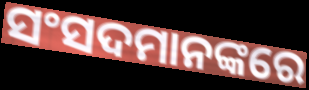
ସଂସଦମାନଙ୍କରେ